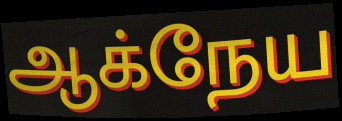
ஆக்நேய